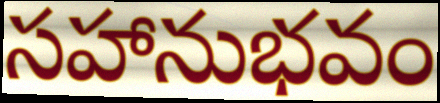
సహానుభవం